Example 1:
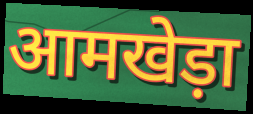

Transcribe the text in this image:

आमखेड़ा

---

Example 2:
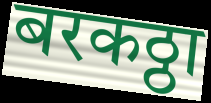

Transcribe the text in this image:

बरकठ्ठा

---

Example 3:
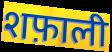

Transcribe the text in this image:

शफ़ाली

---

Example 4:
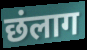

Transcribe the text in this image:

छंलाग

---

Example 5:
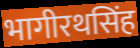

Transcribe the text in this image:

भागीरथसिंह